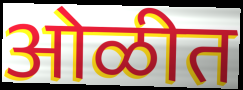
ओळीत